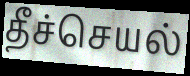
தீச்செயல்